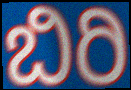
ಬಿರಿ